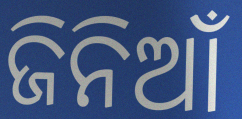
ଜିନିଆଁ